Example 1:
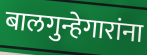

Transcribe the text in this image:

बालगुन्हेगारांना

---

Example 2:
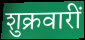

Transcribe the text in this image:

शुक्रवारीं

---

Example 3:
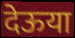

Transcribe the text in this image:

देऊया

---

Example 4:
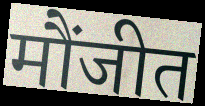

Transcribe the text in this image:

मौंजीत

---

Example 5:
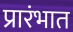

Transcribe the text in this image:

प्रारंभात